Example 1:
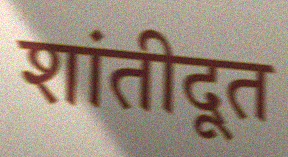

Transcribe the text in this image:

शांतीदूत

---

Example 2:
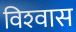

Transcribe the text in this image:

विश्‍वास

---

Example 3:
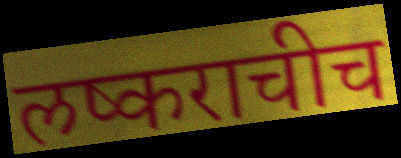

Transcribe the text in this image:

लष्कराचीच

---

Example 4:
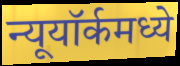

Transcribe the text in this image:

न्यूयॉर्कमध्ये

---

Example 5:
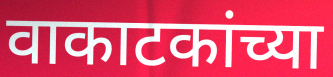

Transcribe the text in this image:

वाकाटकांच्या